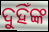
ଦୁହିଁଙ୍କ